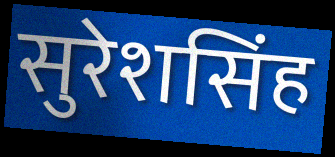
सुरेशसिंह